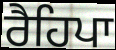
ਰੈਹਿਪਾ